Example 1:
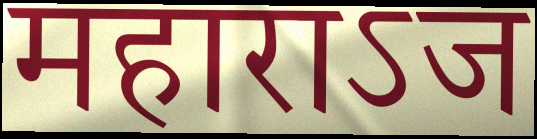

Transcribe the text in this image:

महाराऽज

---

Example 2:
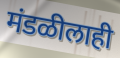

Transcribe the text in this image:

मंडळीलाही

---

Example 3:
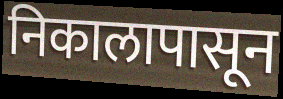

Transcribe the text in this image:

निकालापासून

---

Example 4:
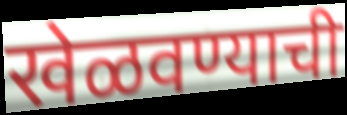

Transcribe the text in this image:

खेळवण्याची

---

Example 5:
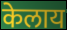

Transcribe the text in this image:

केलाय